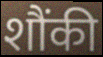
शौंकी